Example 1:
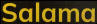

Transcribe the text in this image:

Salama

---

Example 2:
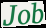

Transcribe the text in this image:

Job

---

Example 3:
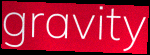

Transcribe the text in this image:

gravity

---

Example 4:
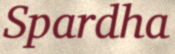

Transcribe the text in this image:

Spardha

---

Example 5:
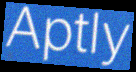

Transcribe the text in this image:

Aptly